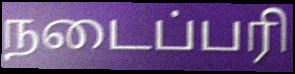
நடைப்பரி